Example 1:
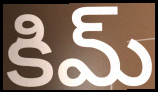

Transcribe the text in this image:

కిమ్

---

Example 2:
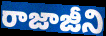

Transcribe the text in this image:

రాజాజీని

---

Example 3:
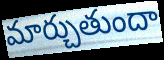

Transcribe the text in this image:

మార్చుతుందా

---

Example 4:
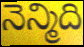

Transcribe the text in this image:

నెన్మిది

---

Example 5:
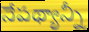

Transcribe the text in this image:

నేపథ్యాన్నీ